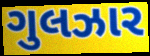
ગુલઝાર